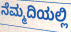
ನೆಮ್ಮದಿಯಲ್ಲಿ